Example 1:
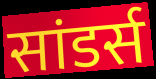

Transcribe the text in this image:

सांडर्स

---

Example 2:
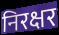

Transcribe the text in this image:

निरक्षर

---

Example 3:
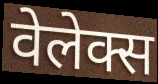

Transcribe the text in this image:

वेलेक्स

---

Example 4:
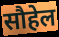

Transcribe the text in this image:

सौहेल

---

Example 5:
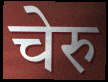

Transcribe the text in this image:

चेरु